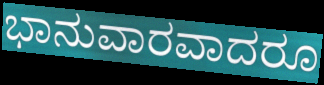
ಭಾನುವಾರವಾದರೂ